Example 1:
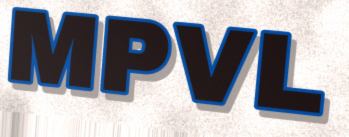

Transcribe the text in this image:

MPVL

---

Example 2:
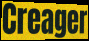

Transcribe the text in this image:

Creager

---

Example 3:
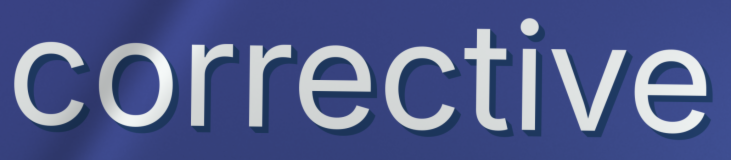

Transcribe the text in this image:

corrective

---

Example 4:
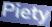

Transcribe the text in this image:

Piety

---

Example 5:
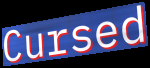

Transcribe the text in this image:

Cursed